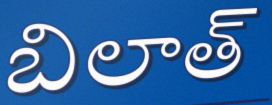
బిలాత్